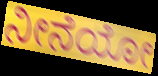
ನೀನೆಯೋ